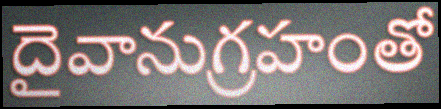
దైవానుగ్రహంతో